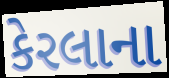
કેરલાના